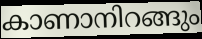
കാണാനിറങ്ങും